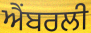
ਐਂਬਰਲੀ